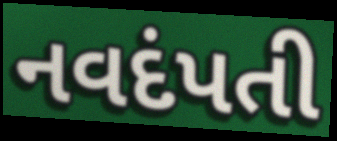
નવદંપતી